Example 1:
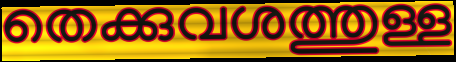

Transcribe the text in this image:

തെക്കുവശത്തുള്ള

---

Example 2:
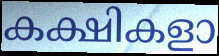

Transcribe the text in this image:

കക്ഷികളാ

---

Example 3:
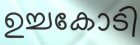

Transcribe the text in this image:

ഉച്ചകോടി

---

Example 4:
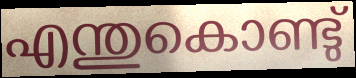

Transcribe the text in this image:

എന്തുകൊണ്ടു്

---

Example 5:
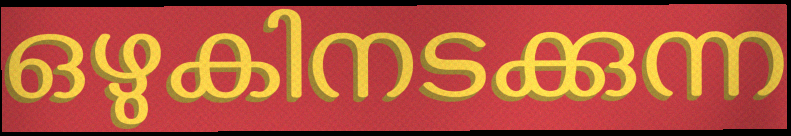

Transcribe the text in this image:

ഒഴുകിനടക്കുന്ന